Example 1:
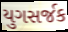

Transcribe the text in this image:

યુગસર્જક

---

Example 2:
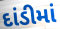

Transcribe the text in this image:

દાંડીમાં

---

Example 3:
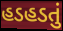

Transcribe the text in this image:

હડહડતું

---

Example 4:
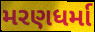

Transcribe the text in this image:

મરણધર્મા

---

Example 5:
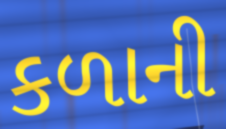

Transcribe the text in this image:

કળાની